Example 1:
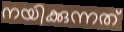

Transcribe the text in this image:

നയിക്കുന്നത്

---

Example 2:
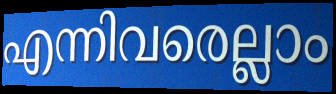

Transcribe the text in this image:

എന്നിവരെല്ലാം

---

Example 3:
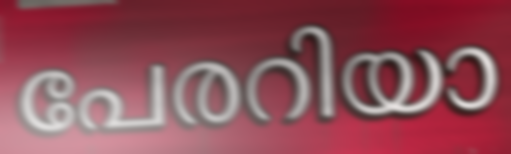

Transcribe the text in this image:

പേരറിയാ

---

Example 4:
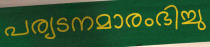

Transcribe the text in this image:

പര്യടനമാരംഭിച്ചു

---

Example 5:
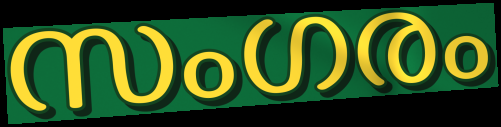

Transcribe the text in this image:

സംഗരം